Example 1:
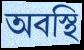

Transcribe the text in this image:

অবস্থি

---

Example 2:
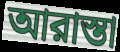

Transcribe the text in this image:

আরাস্তা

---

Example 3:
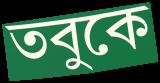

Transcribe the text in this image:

তবুকে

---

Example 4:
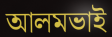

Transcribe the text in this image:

আলমভাই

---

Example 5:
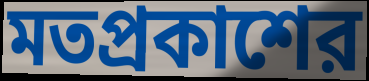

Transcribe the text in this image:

মতপ্রকাশের